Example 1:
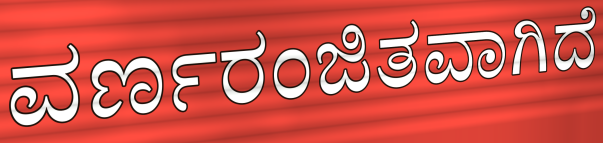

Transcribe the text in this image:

ವರ್ಣರಂಜಿತವಾಗಿದೆ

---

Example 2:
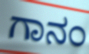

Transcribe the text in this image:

ಗಾನಂ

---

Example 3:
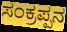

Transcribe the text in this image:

ಸಂಕ್ರಪ್ಪನ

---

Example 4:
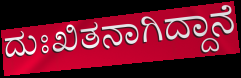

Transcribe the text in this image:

ದುಃಖಿತನಾಗಿದ್ದಾನೆ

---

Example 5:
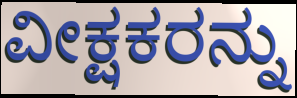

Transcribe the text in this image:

ವೀಕ್ಷಕರನ್ನು